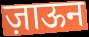
ज़ाऊन